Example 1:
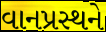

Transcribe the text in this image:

વાનપ્રસ્થને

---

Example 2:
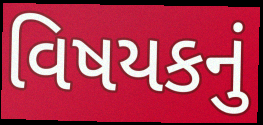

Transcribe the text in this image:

વિષયકનું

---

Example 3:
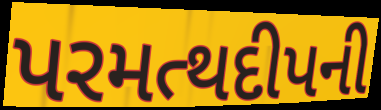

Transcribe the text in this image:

પરમત્થદીપની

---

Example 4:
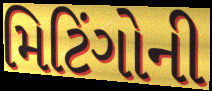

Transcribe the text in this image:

મિટિંગોની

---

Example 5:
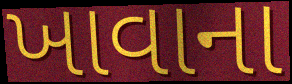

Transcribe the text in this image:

ખાવાના